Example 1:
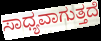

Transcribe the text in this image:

ಸಾಧ್ಯವಾಗುತ್ತದೆ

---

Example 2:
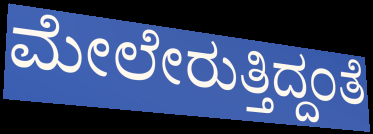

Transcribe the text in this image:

ಮೇಲೇರುತ್ತಿದ್ದಂತೆ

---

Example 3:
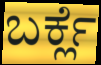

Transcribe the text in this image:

ಬರ್ಕ್ಲೆ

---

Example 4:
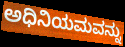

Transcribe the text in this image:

ಅಧಿನಿಯಮವನ್ನು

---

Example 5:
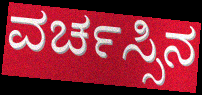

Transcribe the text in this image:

ವರ್ಚಸ್ಸಿನ